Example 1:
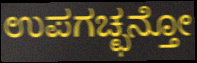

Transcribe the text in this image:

ಉಪಗಚ್ಛನ್ತೋ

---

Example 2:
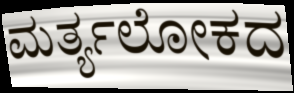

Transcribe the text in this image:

ಮರ್ತ್ಯಲೋಕದ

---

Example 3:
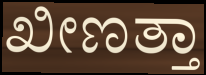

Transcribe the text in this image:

ಖೀಣತ್ತಾ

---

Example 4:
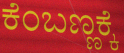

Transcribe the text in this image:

ಕೆಂಬಣ್ಣಕ್ಕೆ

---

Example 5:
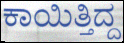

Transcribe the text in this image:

ಕಾಯಿತ್ತಿದ್ದ